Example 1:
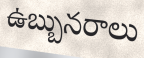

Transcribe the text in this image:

ఉబ్బునరాలు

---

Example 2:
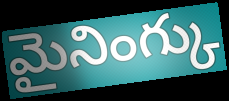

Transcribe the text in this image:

మైనింగ్కు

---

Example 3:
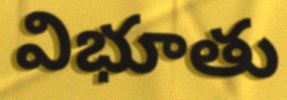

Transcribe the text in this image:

విభూతు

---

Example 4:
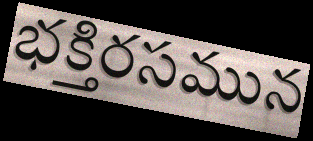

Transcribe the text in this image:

భక్తిరసమున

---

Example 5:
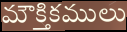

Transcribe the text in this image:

మౌక్తికములు